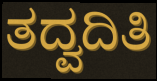
ತದ್ವದಿತಿ